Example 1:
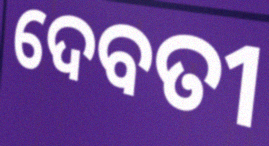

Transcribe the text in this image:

ଦେବତୀ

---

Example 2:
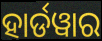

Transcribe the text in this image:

ହାର୍ଡୱାର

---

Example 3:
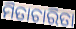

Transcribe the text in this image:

ମିତାଚାରିତା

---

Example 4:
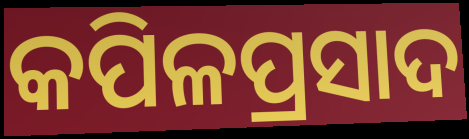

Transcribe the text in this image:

କପିଳପ୍ରସାଦ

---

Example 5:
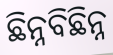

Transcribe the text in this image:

ଛିନ୍ନବିଛିନ୍ନ